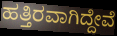
ಹತ್ತಿರವಾಗಿದ್ದೇವೆ